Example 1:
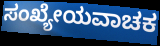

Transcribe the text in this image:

ಸಂಖ್ಯೇಯವಾಚಕ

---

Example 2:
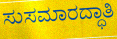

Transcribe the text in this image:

ಸುಸಮಾರದ್ಧಾತಿ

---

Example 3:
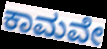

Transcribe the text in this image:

ಕಾಮವೇ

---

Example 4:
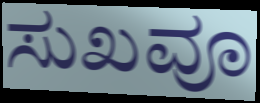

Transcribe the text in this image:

ಸುಖವೂ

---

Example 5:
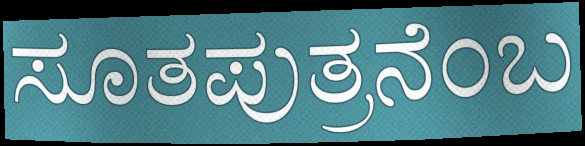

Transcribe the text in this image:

ಸೂತಪುತ್ರನೆಂಬ